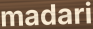
madari